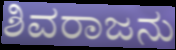
ಶಿವರಾಜನು